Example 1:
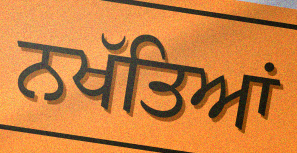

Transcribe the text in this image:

ਨਖੱਤਿਆਂ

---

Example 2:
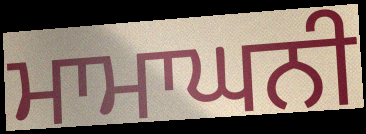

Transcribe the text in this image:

ਮਾਮਾਘਨੀ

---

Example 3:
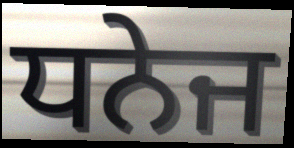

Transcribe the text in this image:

ਧਨੇਜ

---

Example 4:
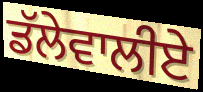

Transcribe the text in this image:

ਡੱਲੇਵਾਲੀਏ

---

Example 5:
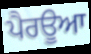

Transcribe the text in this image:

ਪੈਰਊਆ